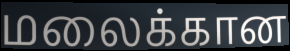
மலைக்கான